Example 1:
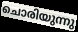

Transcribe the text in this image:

ചൊരിയുന്നു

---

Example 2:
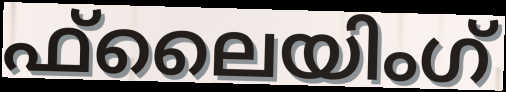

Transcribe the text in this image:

ഫ്‌ലൈയിംഗ്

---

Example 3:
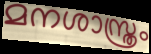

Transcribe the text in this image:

മനശാസ്ത്രം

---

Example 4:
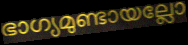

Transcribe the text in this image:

ഭാഗ്യമുണ്ടായല്ലോ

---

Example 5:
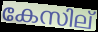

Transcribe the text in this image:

കേസില്